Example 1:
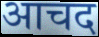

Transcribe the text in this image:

आचद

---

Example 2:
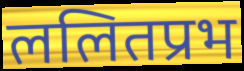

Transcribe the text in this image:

ललितप्रभ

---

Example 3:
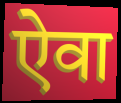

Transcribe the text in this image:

ऐवा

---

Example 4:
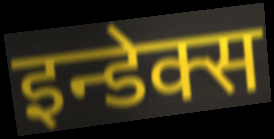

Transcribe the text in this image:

इन्डेक्स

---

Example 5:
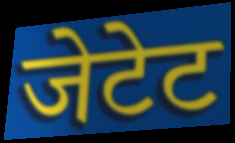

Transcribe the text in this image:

जेटेट